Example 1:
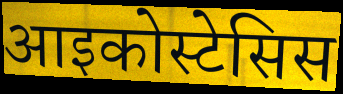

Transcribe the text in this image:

आइकोस्टेसिस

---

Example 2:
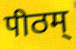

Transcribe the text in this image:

पीठम्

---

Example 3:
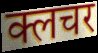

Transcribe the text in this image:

क्लचर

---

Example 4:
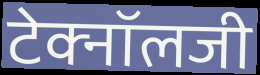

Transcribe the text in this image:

टेक्‍नॉलजी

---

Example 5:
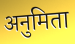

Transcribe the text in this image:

अनुमिता